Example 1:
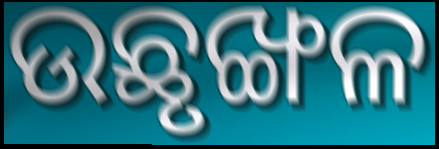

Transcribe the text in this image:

ଉଛୃଙ୍ଖଳ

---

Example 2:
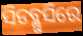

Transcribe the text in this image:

ସିଡବ୍ଲୁସିରେ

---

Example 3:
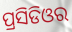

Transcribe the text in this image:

ପ୍ରସିଡିଓର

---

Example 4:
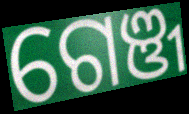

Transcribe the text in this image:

ଗେଞ୍ଜ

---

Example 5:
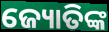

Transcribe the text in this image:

ଜ୍ୟୋତିଙ୍କ